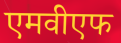
एमवीएफ